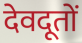
देवदूतों